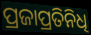
ପ୍ରଜାପ୍ରତିନିଧି